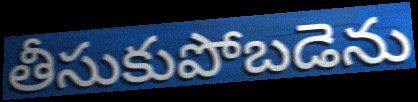
తీసుకుపోబడెను